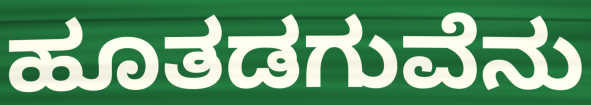
ಹೂತಡಗುವೆನು